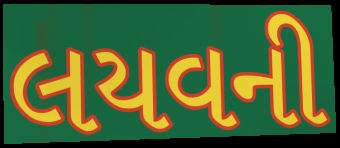
લયવની